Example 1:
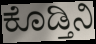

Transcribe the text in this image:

ಕೊಡ್ತಿನಿ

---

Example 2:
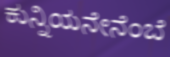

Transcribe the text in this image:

ಕುನ್ನಿಯನೇನೆಂಬೆ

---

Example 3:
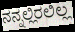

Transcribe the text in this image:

ನನ್ನಲ್ಲಿರಲಿಲ್ಲ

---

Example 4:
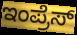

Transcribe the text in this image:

ಇಂಪ್ರೆಸ್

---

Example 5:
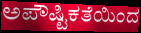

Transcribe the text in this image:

ಅಪೌಷ್ಟಿಕತೆಯಿಂದ